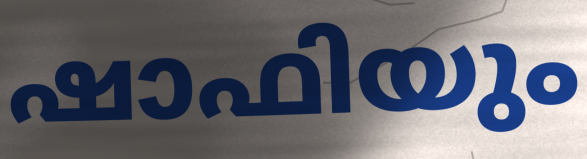
ഷാഫിയും